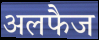
अलफैज